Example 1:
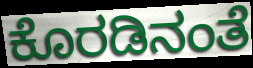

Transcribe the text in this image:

ಕೊರಡಿನಂತೆ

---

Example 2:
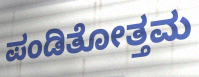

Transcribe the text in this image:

ಪಂಡಿತೋತ್ತಮ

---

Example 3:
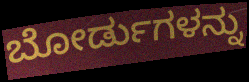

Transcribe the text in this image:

ಬೋರ್ಡುಗಳನ್ನು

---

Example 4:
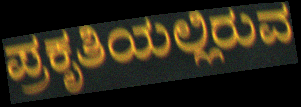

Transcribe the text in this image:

ಪ್ರಕೃತಿಯಲ್ಲಿರುವ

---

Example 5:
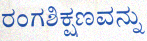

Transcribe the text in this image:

ರಂಗಶಿಕ್ಷಣವನ್ನು